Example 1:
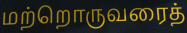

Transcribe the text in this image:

மற்றொருவரைத்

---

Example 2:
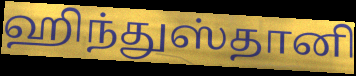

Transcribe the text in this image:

ஹிந்துஸ்தானி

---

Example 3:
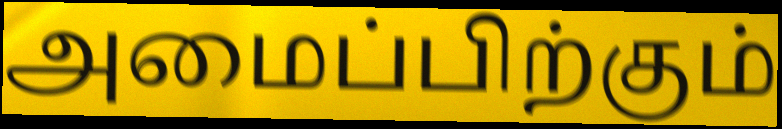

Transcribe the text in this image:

அமைப்பிற்கும்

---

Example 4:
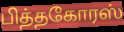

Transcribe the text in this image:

பித்தகோரஸ்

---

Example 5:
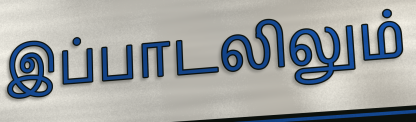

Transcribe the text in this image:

இப்பாடலிலும்